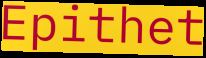
Epithet